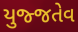
યુજ્જતેવ